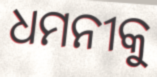
ଧମନୀକୁ